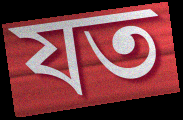
যত